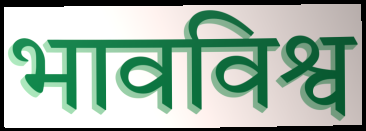
भावविश्व